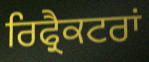
ਰਿਫ੍ਰੈਕਟਰਾਂ